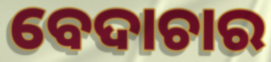
ବେଦାଚାର